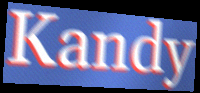
Kandy